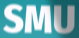
SMU